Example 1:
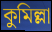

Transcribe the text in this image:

কুমিল্লা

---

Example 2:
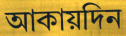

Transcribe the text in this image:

আকায়দিন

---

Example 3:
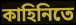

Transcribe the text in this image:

কাহিনিতে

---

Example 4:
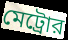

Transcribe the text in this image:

মেট্রোর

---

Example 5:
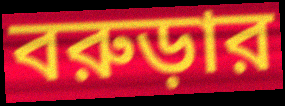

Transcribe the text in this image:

বরুড়ার